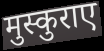
मुस्कुराए